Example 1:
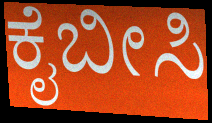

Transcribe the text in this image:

ಕೈಬೀಸಿ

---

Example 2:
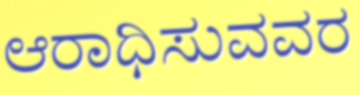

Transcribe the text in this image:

ಆರಾಧಿಸುವವರ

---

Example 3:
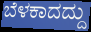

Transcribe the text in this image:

ಬೆಳಕಾದದ್ದು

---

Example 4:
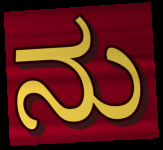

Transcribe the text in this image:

ನು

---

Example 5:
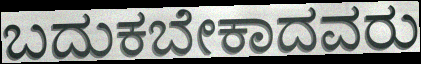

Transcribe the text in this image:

ಬದುಕಬೇಕಾದವರು